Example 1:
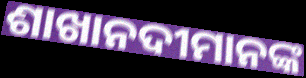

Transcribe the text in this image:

ଶାଖାନଦୀମାନଙ୍କ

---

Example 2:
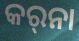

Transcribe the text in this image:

କର୍‌ନା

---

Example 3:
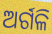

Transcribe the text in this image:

ଅର୍ଗଳି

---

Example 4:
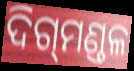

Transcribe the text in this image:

ଦିଗ୍‍ମଣ୍ଡଳ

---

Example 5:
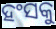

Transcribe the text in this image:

ହଂସକୁ